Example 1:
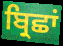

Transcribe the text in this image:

ਬ੍ਰਿਛਾਂ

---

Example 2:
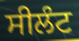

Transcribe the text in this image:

ਸੀਲੰਟ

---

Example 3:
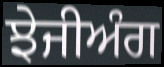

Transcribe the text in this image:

ਝੇਜੀਅੰਗ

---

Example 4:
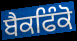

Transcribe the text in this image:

ਬੈਕਫਿੰਕੋ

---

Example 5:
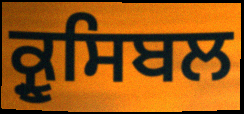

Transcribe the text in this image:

ਕ੍ਰੂਸਿਬਲ